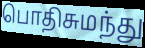
பொதிசுமந்து